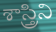
శాస్త్రిని